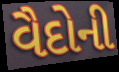
વૈદોની